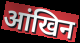
आंखिन